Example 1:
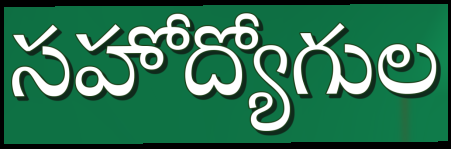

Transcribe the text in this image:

సహోద్యోగుల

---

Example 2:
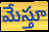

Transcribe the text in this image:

మేస్తూ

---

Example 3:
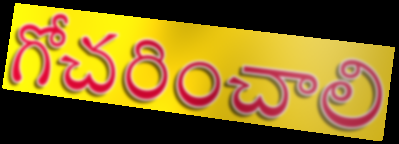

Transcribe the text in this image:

గోచరించాలి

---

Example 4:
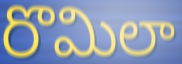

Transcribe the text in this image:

రొమిలా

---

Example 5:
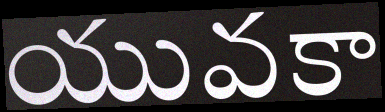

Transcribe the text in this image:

యువకా